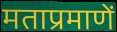
मताप्रमाणें